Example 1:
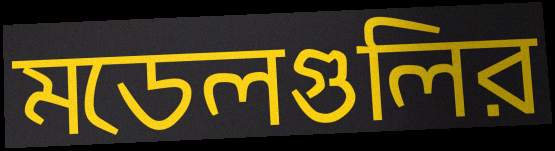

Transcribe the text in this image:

মডেলগুলির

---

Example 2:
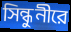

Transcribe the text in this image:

সিন্ধুনীরে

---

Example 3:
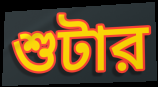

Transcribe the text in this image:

শুটার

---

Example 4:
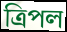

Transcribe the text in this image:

ত্রিপল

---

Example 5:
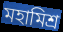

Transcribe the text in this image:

মহামিশ্র